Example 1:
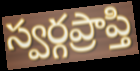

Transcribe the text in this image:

స్వర్గప్రాప్తి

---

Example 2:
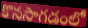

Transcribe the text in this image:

కొనసాగడంలో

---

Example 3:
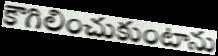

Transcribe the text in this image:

కౌగిలించుకుంటాను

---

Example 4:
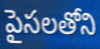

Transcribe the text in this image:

పైసలతోని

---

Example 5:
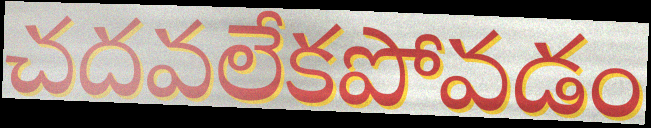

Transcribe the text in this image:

చదవలేకపోవడం